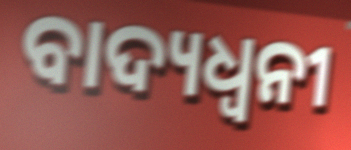
ବାଦ୍ୟଧ୍ୱନୀ